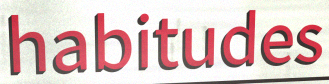
habitudes